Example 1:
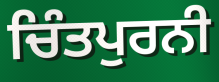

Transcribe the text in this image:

ਚਿੰਤਪੁਰਨੀ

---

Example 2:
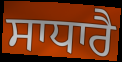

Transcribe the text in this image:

ਸਾਧਾਰੈ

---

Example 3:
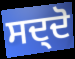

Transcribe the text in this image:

ਸਦ੍ਦੋ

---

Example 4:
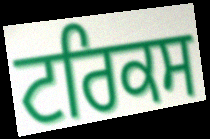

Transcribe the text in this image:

ਟਰਿਕਸ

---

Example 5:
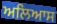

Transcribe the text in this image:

ਅਲਿਆਸ